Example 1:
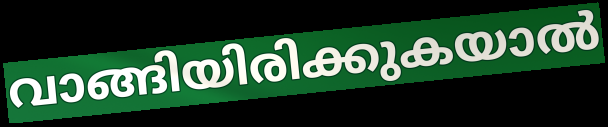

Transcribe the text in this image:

വാങ്ങിയിരിക്കുകയാൽ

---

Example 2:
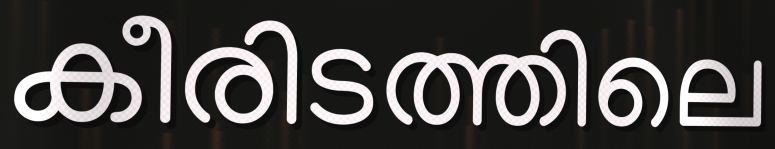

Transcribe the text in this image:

കീരിടത്തിലെ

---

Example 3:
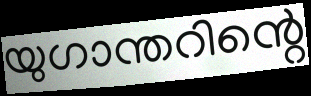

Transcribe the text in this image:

യുഗാന്തറിന്റെ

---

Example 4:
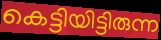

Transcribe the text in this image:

കെട്ടിയിട്ടിരുന്ന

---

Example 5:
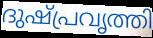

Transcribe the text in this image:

ദുഷ്പ്രവൃത്തി